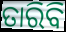
ତାରିବି